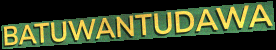
BATUWANTUDAWA